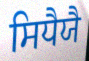
ਸਿਧੈਯੈ